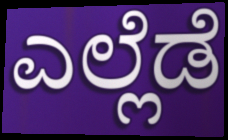
ಎಲ್ಲೆಡೆ